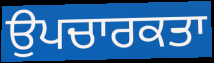
ਉਪਚਾਰਕਤਾ